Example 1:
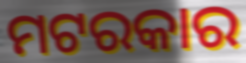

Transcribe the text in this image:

ମଟରକାର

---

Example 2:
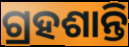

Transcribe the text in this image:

ଗ୍ରହଶାନ୍ତି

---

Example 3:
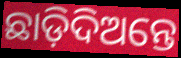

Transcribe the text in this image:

ଛାଡ଼ିଦିଅନ୍ତେ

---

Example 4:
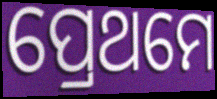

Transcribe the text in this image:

ପ୍ରେଥମେ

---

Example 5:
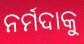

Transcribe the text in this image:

ନର୍ମଦାକୁ